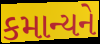
કમાન્યને